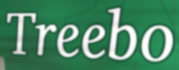
Treebo